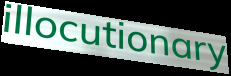
illocutionary